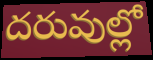
దరువుల్లో